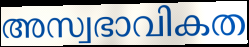
അസ്വഭാവികത